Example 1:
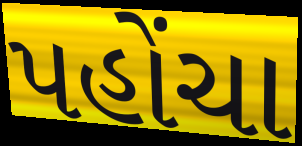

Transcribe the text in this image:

પહોંચા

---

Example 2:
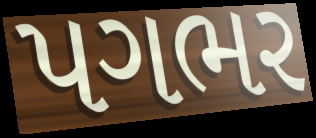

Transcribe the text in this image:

પગભર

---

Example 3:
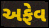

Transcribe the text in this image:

અફેવ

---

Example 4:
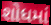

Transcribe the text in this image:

શોધમાં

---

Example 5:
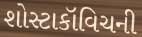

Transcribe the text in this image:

શોસ્ટાકૉવિચની